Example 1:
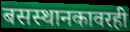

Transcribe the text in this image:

बसस्थानकावरही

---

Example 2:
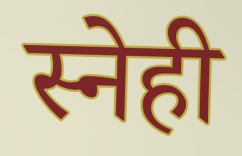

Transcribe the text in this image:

स्नेही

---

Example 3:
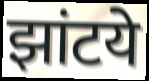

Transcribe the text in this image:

झांटये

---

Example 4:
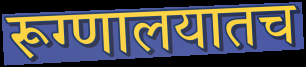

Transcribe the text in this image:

रूग्णालयातच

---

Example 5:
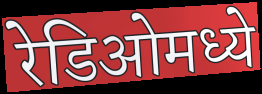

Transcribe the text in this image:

रेडिओमध्ये